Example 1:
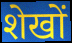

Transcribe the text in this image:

शेखों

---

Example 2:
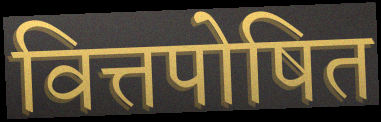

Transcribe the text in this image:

वित्तपोषित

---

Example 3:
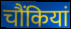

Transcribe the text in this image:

चौंकियां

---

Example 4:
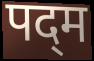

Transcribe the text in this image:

पद्‌म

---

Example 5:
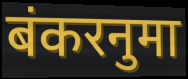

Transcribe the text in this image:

बंकरनुमा